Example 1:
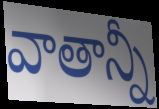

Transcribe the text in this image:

వాతాన్నీ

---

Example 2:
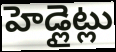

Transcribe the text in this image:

హెడ్లైట్లు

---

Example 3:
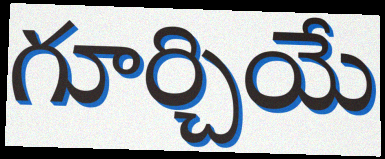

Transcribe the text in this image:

గూర్చియే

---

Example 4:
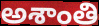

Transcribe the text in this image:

అశాంతి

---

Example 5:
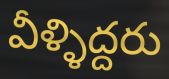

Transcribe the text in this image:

వీళ్ళిద్దరు